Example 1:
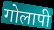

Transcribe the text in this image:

गोलापी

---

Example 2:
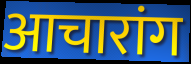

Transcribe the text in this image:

आचारांग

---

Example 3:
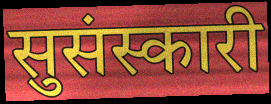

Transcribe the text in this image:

सुसंस्कारी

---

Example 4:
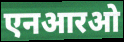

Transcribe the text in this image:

एनआरओ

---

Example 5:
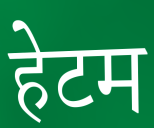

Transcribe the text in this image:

हेटम